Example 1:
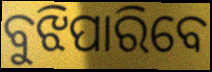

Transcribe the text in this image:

ବୁଝିପାରିବେ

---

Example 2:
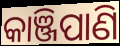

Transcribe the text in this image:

କାଞ୍ଜିପାଣି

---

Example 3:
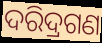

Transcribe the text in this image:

ଦରିଦ୍ରଗଣ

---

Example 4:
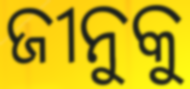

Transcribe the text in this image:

ଜୀନୁକୁ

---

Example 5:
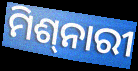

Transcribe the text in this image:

ମିଶ୍‍ନାରୀ